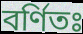
বর্ণিতঃ